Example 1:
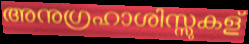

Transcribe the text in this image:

അനുഗ്രഹാശിസ്സുകള്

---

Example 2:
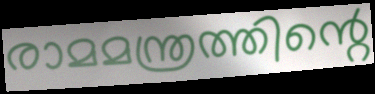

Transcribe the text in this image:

രാമമന്ത്രത്തിന്റെ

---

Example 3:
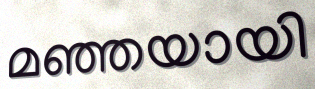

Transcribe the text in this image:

മഞ്ഞയായി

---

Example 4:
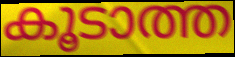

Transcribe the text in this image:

കൂടാത്ത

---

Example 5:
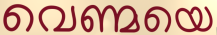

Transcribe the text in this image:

വെണ്മയെ